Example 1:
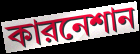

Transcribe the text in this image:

কারনেশান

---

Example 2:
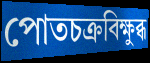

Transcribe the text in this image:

পোতচক্রবিক্ষুব্ধ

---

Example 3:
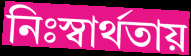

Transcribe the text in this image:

নিঃস্বার্থতায়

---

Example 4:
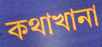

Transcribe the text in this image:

কথাখানা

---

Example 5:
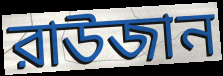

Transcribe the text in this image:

রাউজান